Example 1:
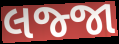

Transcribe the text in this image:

લજ્જા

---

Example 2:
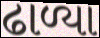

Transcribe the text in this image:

ઢાળ્યા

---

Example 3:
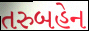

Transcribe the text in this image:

તરુબહેન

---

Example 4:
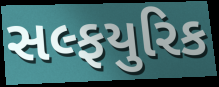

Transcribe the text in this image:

સલ્ફયુરિક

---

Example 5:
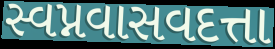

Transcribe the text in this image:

સ્વપ્નવાસવદત્તા